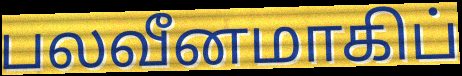
பலவீனமாகிப்